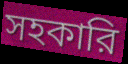
সহকারি